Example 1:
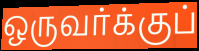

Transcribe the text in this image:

ஒருவர்க்குப்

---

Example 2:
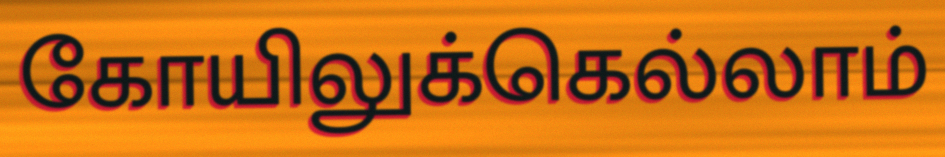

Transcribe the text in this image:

கோயிலுக்கெல்லாம்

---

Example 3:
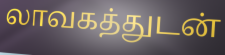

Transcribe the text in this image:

லாவகத்துடன்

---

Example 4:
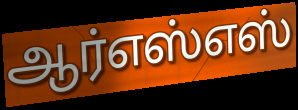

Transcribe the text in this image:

ஆர்எஸ்எஸ்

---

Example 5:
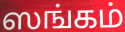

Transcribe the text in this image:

ஸங்கம்